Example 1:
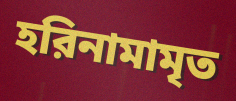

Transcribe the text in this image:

হরিনামামৃত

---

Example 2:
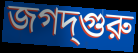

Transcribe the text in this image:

জগদ্‌গুরু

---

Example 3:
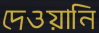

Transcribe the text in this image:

দেওয়ানি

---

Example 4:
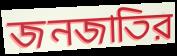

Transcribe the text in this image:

জনজাতির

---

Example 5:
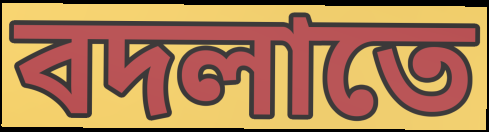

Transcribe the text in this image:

বদলাতে